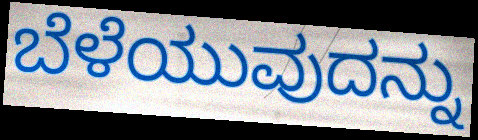
ಬೆಳೆಯುವುದನ್ನು